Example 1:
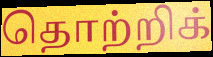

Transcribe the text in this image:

தொற்றிக்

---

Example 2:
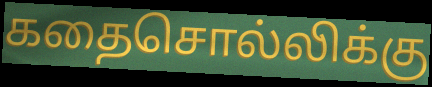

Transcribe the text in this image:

கதைசொல்லிக்கு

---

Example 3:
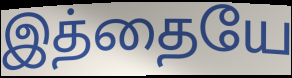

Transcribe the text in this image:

இத்தையே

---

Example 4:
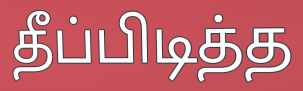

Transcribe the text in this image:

தீப்பிடித்த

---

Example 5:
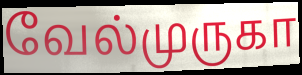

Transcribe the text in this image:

வேல்முருகா